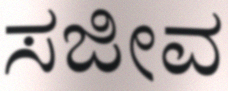
ಸಜೀವ